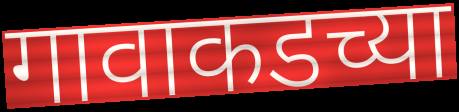
गावाकडच्या